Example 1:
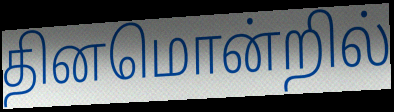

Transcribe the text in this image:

தினமொன்றில்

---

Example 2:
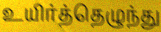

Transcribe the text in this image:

உயிர்த்தெழுந்து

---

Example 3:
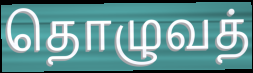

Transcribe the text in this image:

தொழுவத்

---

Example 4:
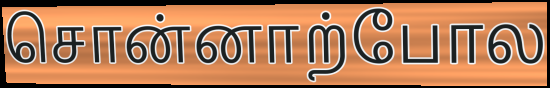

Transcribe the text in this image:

சொன்னாற்போல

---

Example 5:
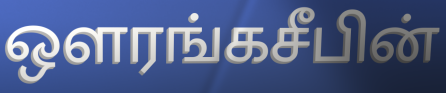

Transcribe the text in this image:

ஔரங்கசீபின்